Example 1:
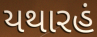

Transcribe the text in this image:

યથારહં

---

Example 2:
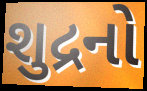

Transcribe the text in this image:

શુદ્રનો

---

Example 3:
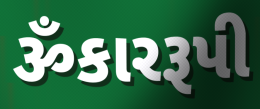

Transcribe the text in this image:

ૐકારરૂપી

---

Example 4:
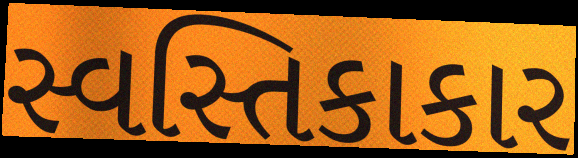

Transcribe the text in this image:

સ્વસ્તિકાકાર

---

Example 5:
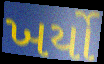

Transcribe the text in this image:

ખર્યો